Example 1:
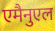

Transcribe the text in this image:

एमैनुएल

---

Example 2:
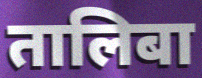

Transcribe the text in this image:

तालिबा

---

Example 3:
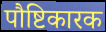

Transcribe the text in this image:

पौष्टिकारक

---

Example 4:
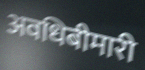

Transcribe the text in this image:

अवधिबीमारी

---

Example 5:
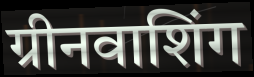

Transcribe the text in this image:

ग्रीनवाशिंग